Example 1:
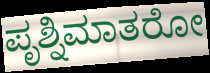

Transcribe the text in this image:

ಪೃಶ್ನಿಮಾತರೋ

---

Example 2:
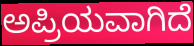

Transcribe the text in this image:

ಅಪ್ರಿಯವಾಗಿದೆ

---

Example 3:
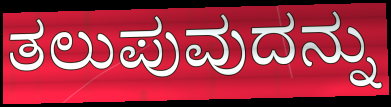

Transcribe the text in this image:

ತಲುಪುವುದನ್ನು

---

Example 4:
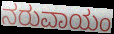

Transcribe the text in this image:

ನರುವಾಯಂ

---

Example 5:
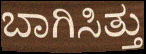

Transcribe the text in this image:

ಬಾಗಿಸಿತ್ತು